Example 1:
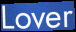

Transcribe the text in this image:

Lover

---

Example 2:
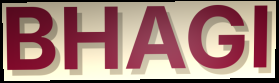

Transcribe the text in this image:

BHAGI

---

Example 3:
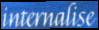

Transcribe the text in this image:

internalise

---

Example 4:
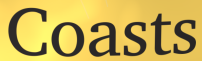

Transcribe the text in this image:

Coasts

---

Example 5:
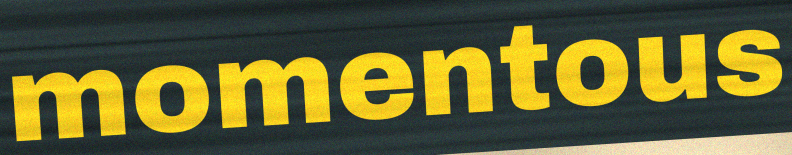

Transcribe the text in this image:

momentous